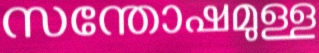
സന്തോഷമുള്ള